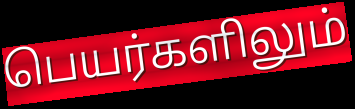
பெயர்களிலும்